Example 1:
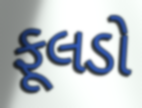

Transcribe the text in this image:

ફૂલડો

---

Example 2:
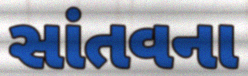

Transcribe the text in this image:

સાંતવના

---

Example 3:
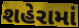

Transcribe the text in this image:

શહેરામાં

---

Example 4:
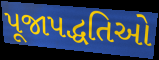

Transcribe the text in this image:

પૂજાપદ્ધતિઓ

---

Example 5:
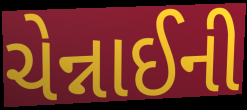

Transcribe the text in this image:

ચેન્નાઈની